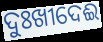
ଦୁଃଖୀଦେଈ